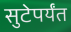
सुटेपर्यंत